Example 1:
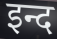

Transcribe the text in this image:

इन्द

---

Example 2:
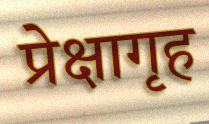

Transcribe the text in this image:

प्रेक्षागृह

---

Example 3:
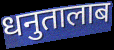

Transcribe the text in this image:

धनुतालाब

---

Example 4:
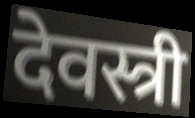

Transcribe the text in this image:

देवस्त्री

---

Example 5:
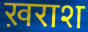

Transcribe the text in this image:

ख़राश